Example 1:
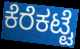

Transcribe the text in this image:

ಕೆರೆಕಟ್ಟೆ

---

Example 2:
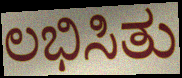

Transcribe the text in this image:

ಲಭಿಸಿತು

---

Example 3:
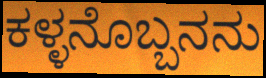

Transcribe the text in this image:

ಕಳ್ಳನೊಬ್ಬನನು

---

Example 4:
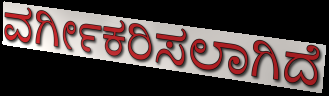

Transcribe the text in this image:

ವರ್ಗೀಕರಿಸಲಾಗಿದೆ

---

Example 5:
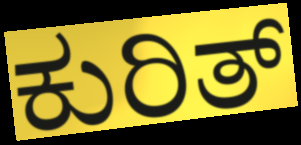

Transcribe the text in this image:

ಕುರಿತ್